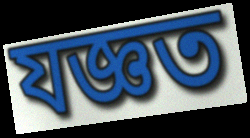
যজ্ঞত